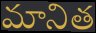
మానిత